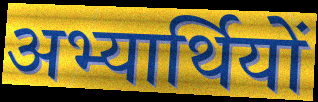
अभ्यार्थियों